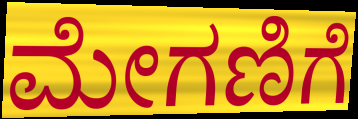
ಮೇಗಣಿಗೆ